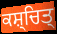
ਕਸ਼੍ਚਿਤ੍